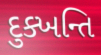
દુક્ખન્તિ